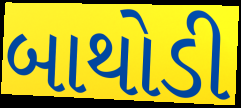
બાથોડી